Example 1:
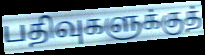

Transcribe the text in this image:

பதிவுகளுக்குத்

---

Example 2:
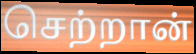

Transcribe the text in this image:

செற்றான்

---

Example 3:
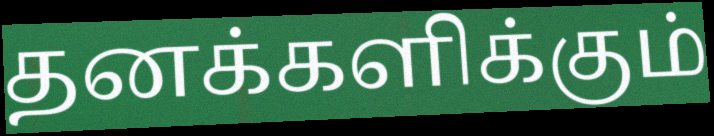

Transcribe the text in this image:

தனக்களிக்கும்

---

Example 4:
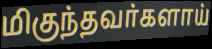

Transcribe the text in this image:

மிகுந்தவர்களாய்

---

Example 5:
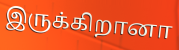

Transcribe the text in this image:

இருக்கிறானா